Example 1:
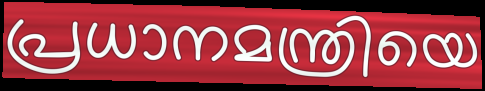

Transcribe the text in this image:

പ്രധാനമന്ത്രിയെ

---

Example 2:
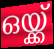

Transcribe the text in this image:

ഒയ്ക്ക്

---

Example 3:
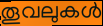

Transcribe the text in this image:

തൂവലുകൾ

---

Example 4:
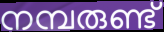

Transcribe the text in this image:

നമ്പരുണ്ട്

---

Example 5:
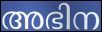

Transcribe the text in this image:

അഭിന